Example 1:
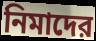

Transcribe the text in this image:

নিমাদের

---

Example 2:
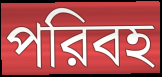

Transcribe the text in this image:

পরিবহ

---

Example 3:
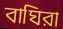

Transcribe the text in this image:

বাঘিরা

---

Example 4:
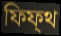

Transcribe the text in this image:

ফিফ্থ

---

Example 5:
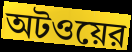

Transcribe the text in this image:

অটওয়ের